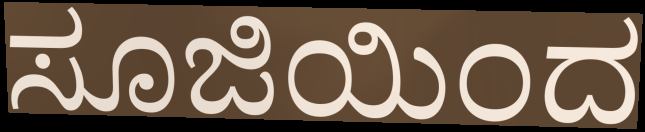
ಸೂಜಿಯಿಂದ